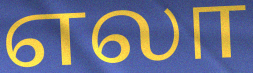
எலா